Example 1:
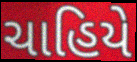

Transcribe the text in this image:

ચાહિયે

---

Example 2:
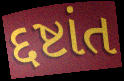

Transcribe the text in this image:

દ્દષ્ટાંત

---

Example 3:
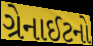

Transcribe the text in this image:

ગ્રેનાઈટનો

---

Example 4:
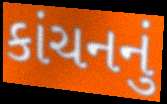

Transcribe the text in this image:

કાંચનનું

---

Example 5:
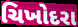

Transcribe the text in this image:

ચિખોદરા